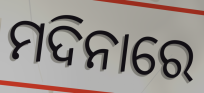
ମଦିନାରେ